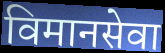
विमानसेवा